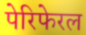
पेरिफेरल